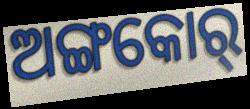
ଅଙ୍ଗକୋର୍